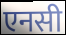
एनसी